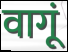
वागूं